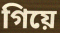
গিয়ে